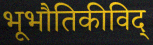
भूभौतिकीविद्